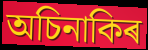
অচিনাকিৰ